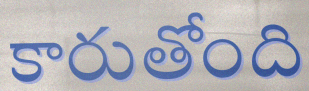
కారుతోంది